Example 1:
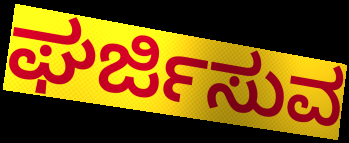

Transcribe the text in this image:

ಘರ್ಜಿಸುವ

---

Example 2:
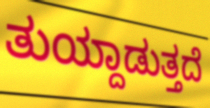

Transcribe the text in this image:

ತುಯ್ದಾಡುತ್ತದೆ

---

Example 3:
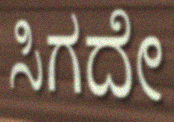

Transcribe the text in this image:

ಸಿಗದೇ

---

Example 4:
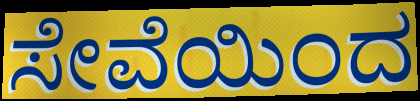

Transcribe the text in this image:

ಸೇವೆಯಿಂದ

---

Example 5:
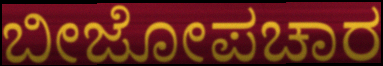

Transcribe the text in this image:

ಬೀಜೋಪಚಾರ